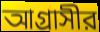
আগ্রাসীর